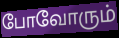
போவோரும்